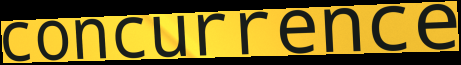
concurrence